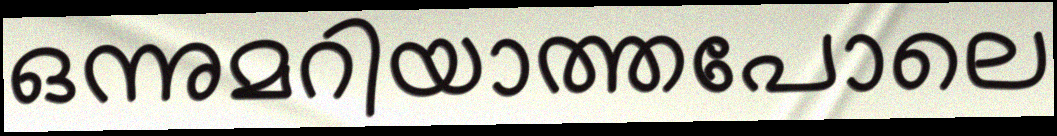
ഒന്നുമറിയാത്തപോലെ